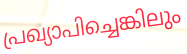
പ്രഖ്യാപിച്ചെങ്കിലും